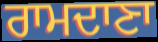
ਰਾਮਦਾਣਾ